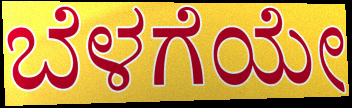
ಬೆಳಗೆಯೇ